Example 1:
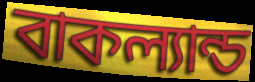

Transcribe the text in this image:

বাকল্যান্ড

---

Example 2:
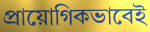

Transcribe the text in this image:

প্রায়োগিকভাবেই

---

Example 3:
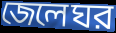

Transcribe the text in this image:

জেলেঘর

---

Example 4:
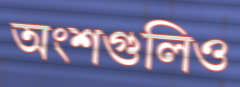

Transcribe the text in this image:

অংশগুলিও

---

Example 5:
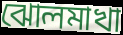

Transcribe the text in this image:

ঝোলমাখা